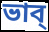
ভাব্